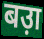
बउ़ा